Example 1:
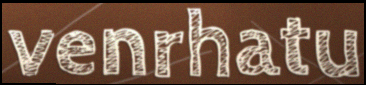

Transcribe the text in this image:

venrhatu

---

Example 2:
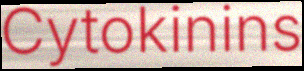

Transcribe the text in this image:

Cytokinins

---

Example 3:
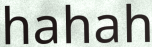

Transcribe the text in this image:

hahah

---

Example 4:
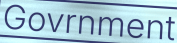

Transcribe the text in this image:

Govrnment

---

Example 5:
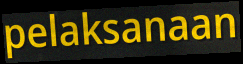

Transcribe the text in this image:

pelaksanaan